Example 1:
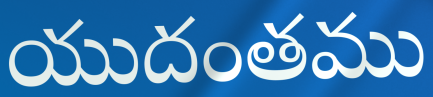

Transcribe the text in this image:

యుదంతము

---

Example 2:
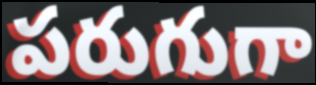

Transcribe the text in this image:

పరుగుగా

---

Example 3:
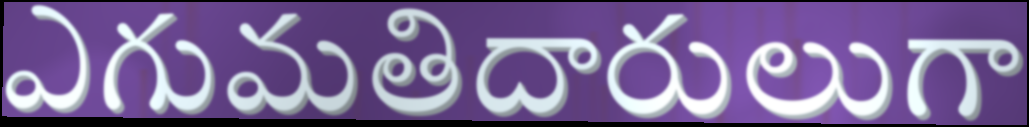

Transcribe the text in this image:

ఎగుమతిదారులుగా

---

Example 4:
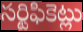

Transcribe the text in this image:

సర్టిఫికెట్లు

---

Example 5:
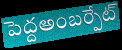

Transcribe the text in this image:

పెద్దఅంబర్పేట్